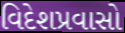
વિદેશપ્રવાસો